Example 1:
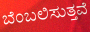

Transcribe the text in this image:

ಬೆಂಬಲಿಸುತ್ತವೆ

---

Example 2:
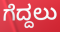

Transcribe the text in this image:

ಗೆದ್ದಲು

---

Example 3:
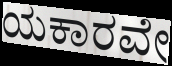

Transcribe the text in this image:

ಯಕಾರವೇ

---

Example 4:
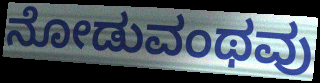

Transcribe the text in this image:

ನೋಡುವಂಥವು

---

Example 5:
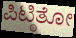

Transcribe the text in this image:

ಪಿಟ್ಠಿತೋ